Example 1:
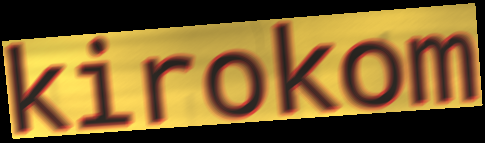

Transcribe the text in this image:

kirokom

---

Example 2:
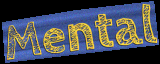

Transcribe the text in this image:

Mental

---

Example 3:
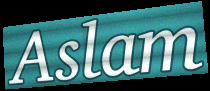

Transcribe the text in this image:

Aslam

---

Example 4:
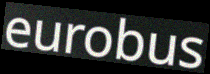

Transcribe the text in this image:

eurobus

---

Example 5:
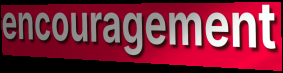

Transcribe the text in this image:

encouragement